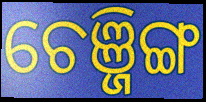
ଚେଞ୍ଜିଙ୍ଗ